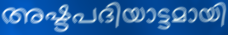
അഷ്ടപദിയാട്ടമായി